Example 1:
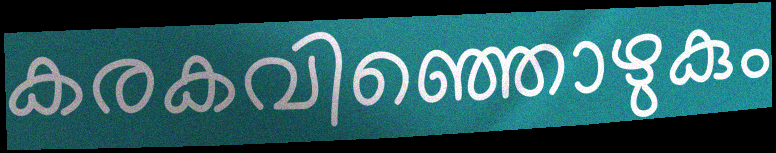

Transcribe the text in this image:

കരകവിഞ്ഞൊഴുകും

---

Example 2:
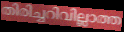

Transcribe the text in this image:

തിരിച്ചറിവില്ലാത്ത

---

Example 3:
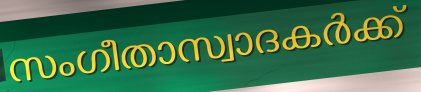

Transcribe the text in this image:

സംഗീതാസ്വാദകർക്ക്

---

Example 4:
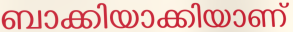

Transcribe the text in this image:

ബാക്കിയാക്കിയാണ്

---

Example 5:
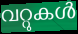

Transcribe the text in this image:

വറ്റുകൾ